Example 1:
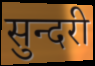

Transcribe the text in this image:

सुन्दरी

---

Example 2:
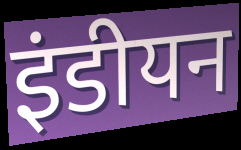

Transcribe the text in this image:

इंडीयन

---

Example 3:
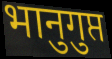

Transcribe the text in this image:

भानुगुप्त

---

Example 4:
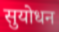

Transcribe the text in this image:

सुयोधन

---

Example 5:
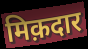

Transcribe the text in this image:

मिक़दार